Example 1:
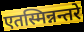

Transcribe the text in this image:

एतस्मिन्नन्तरे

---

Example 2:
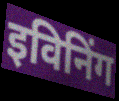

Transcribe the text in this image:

इविनिंग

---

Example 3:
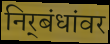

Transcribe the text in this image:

निर्बंधांवर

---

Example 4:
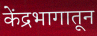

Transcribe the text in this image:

केंद्रभागातून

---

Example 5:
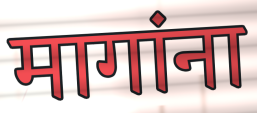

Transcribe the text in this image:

मागांना